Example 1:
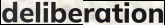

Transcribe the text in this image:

deliberation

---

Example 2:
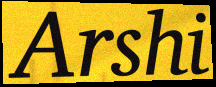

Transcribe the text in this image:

Arshi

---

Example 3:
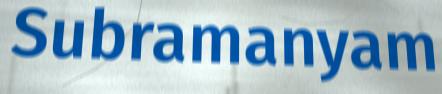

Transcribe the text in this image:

Subramanyam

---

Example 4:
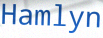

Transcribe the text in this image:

Hamlyn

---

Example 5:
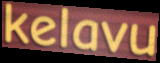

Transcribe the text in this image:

kelavu